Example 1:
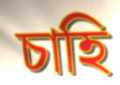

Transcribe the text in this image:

চাহি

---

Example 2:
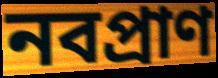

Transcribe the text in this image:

নবপ্রাণ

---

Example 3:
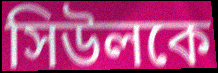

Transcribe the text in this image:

সিউলকে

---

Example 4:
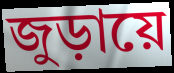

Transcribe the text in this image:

জুড়ায়ে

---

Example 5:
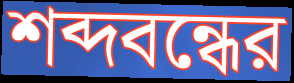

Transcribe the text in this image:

শব্দবন্ধের